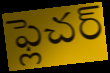
ఫ్లెచర్